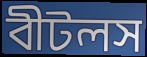
বীটলস